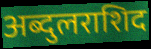
अब्दुलराशिद